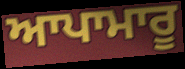
ਆਪਾਮਾਰੂ